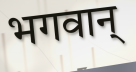
भगवान्